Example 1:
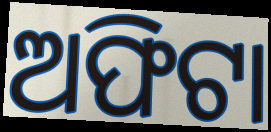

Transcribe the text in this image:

ଅଫିଟା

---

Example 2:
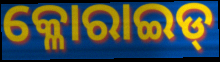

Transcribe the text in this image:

କ୍ଳୋରାଇଡ୍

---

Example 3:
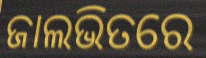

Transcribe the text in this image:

ଜାଲଭିତରେ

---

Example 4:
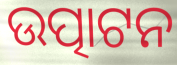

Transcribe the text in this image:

ଉତ୍ପାଟନ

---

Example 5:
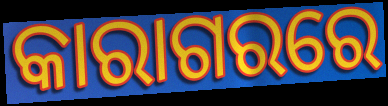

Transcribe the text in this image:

କାରାଗରରେ